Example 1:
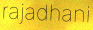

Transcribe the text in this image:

rajadhani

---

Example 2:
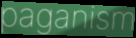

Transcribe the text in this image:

paganism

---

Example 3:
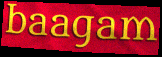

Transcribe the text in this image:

baagam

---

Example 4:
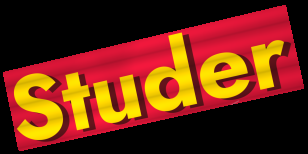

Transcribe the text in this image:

Studer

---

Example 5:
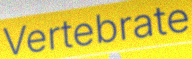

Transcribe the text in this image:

Vertebrate